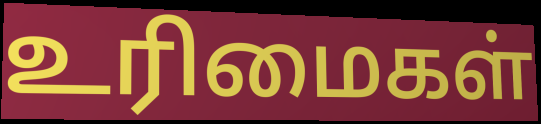
உரிமைகள்